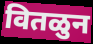
वितळुन